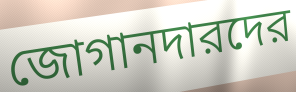
জোগানদারদের